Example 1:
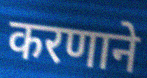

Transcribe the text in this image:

करणाने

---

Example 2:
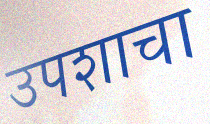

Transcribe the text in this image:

उपशाचा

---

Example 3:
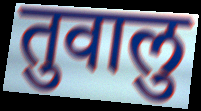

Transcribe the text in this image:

तुवालु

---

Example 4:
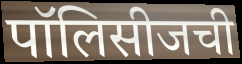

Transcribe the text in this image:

पॉलिसीजची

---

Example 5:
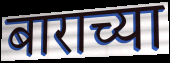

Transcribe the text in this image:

बाराच्या